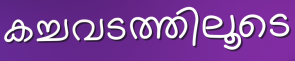
കച്ചവടത്തിലൂടെ